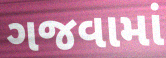
ગજવામાં